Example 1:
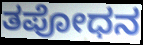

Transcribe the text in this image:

ತಪೋಧನ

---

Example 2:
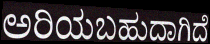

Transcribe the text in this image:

ಅರಿಯಬಹುದಾಗಿದೆ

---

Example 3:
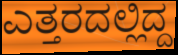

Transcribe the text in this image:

ಎತ್ತರದಲ್ಲಿದ್ದ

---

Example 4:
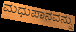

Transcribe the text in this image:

ಮಧುಪಾನವನ್ನು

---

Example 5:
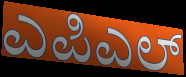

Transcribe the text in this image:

ಎಪಿಎಲ್